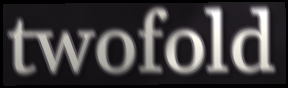
twofold